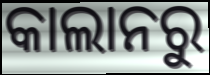
କାଲାନରୁ